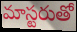
మాస్టరుతో